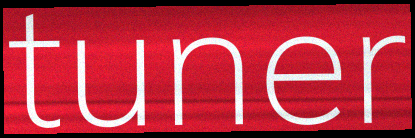
tuner